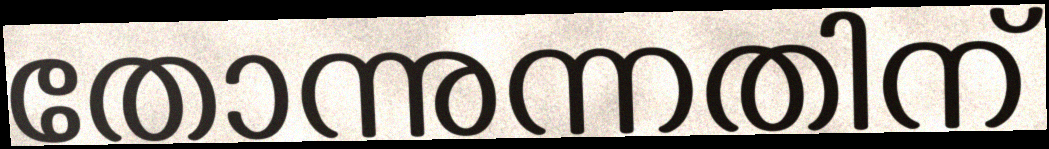
തോന്നുന്നതിന്